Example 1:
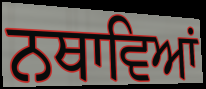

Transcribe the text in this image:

ਨਥਾਵਿਆਂ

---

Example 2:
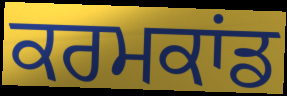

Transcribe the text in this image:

ਕਰਮਕਾਂਡ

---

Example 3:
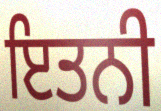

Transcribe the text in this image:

ਇਤਨੀ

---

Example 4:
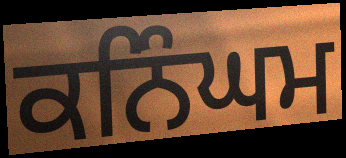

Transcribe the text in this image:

ਕਨਿੰਘਮ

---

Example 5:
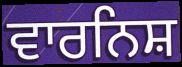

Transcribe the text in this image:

ਵਾਰਨਿਸ਼